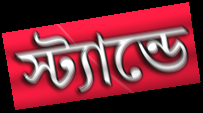
স্ট্যান্ডে